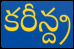
కరీన్ద్ర